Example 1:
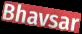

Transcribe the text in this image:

Bhavsar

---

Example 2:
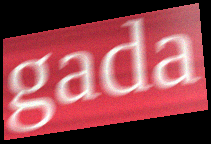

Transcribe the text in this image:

gada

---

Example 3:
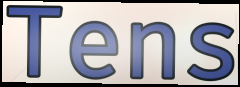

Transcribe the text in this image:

Tens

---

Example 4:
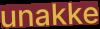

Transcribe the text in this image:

unakke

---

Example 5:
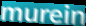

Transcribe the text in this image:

murein